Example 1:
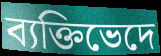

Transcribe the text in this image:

ব্যক্তিভেদে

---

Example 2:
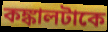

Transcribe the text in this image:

কঙ্কালটাকে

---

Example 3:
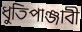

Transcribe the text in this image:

ধুতিপাঞ্জাবী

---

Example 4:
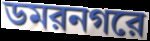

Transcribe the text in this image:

ডমরনগরে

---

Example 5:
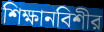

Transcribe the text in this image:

শিক্ষানবিশীর